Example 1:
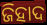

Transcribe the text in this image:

ଜିହାଦ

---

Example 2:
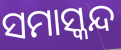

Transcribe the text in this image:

ସମାସ୍କନ୍ଦ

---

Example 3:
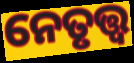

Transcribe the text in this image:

ନେତୃତ୍ତ୍ୱ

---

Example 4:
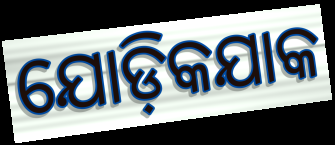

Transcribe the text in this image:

ଯୋଡ଼ିକଯାକ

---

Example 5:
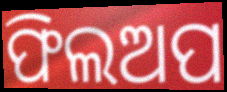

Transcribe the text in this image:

ଫିଲଅପ